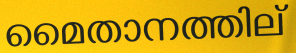
മൈതാനത്തില്